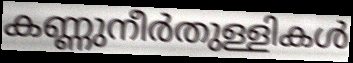
കണ്ണുനീർതുള്ളികൾ